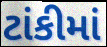
ટાંકીમાં